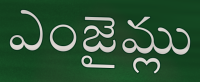
ఎంజైమ్లు